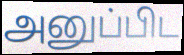
அனுப்பிட